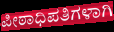
ಪೀಠಾಧಿಪತಿಗಳಾಗಿ